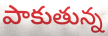
పాకుతున్న